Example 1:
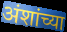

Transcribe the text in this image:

अंशांच्या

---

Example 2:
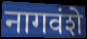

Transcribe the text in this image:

नागवंशे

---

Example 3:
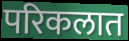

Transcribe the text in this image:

परिकलात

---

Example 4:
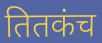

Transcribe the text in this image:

तितकंच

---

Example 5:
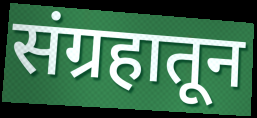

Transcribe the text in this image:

संग्रहातून